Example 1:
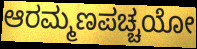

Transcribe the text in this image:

ಆರಮ್ಮಣಪಚ್ಚಯೋ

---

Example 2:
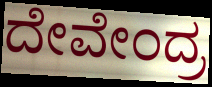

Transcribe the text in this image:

ದೇವೇಂದ್ರ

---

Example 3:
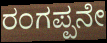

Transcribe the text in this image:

ರಂಗಪ್ಪನೇ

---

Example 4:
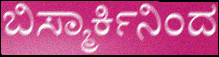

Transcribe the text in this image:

ಬಿಸ್ಮಾರ್ಕಿನಿಂದ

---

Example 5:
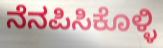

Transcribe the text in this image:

ನೆನಪಿಸಿಕೊಳ್ಳಿ